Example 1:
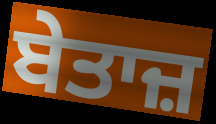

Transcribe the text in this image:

ਬੇਤਾਜ਼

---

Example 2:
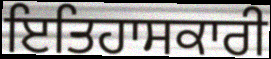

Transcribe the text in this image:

ਇਤਿਹਾਸਕਾਰੀ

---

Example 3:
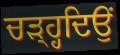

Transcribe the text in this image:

ਚੜ੍ਹ੍ਹਦਿਉਂ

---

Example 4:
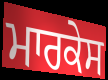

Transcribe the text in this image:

ਮਾਰਕੇਸ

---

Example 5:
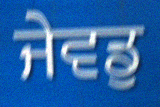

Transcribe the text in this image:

ਜੇਵਡੁ